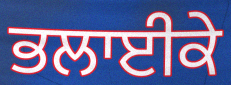
ਭਲਾਈਕੇ